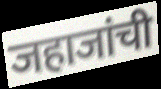
जहाजांची